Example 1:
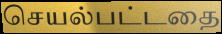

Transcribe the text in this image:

செயல்பட்டதை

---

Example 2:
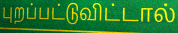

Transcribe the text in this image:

புறப்பட்டுவிட்டால்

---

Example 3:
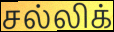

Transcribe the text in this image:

சல்லிக்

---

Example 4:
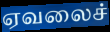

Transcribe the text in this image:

ஏவலைச்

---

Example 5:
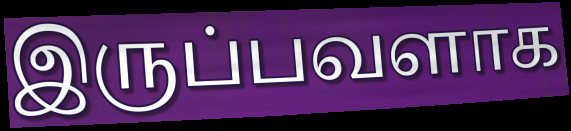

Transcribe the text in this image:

இருப்பவளாக